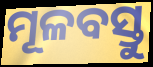
ମୂଳବସ୍ତୁ